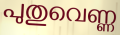
പുതുവെണ്ണ